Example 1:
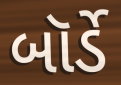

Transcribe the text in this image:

બૉર્ડે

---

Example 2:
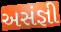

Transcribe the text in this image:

અસંજ્ઞી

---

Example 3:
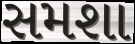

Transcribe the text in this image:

સમશા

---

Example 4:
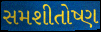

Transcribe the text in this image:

સમશીતોષ્ણ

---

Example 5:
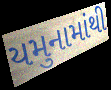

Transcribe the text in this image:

યમુનામાંથી